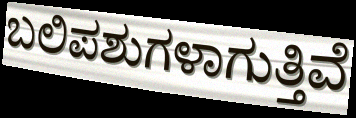
ಬಲಿಪಶುಗಳಾಗುತ್ತಿವೆ